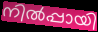
നിൽപ്പായി